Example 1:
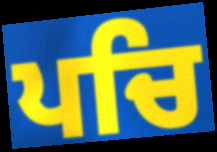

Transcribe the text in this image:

ਪਚਿ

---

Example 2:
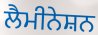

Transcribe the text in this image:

ਲੈਮੀਨੇਸ਼ਨ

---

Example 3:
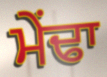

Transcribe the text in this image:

ਮੇਂਢਾ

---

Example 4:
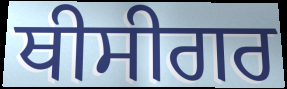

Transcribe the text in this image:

ਥੀਸੀਗਰ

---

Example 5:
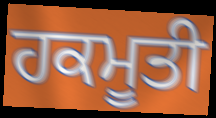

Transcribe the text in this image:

ਹਕਮੂਤੀ